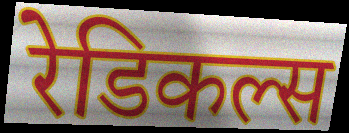
रेडिकल्स